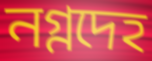
নগ্নদেহ